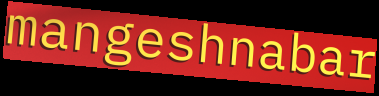
mangeshnabar